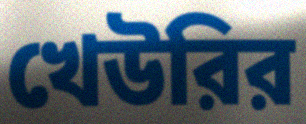
খেউরির